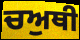
ਚਅੁਥੀ